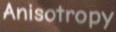
Anisotropy